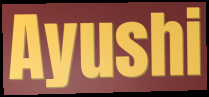
Ayushi